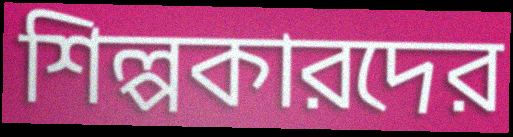
শিল্পকারদের